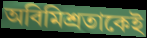
অবিমিশ্রতাকেই